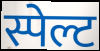
स्पेल्ट